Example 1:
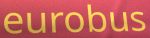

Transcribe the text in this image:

eurobus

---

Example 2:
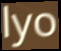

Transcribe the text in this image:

lyo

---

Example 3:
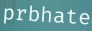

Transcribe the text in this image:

prbhate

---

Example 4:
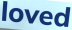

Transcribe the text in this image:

loved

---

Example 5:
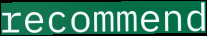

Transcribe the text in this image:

recommend